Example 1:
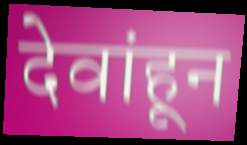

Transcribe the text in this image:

देवांहून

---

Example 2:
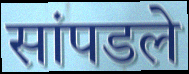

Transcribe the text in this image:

सांपडले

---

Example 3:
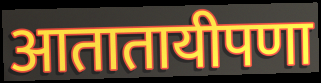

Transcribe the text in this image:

आतातायीपणा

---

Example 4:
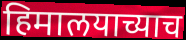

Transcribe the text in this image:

हिमालयाच्याच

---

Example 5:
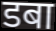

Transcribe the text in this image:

डबा